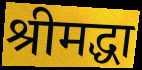
श्रीमद्धा